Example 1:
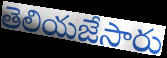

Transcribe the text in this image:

తెలియజేసారు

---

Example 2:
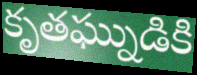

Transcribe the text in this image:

కృతఘ్నుడికి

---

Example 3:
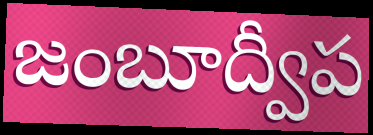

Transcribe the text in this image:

జంబూద్వీప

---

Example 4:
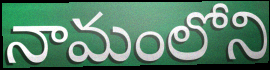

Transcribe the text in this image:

నామంలోని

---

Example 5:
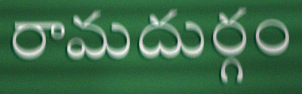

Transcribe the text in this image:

రామదుర్గం